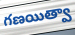
గణయిత్వా